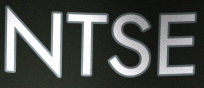
NTSE